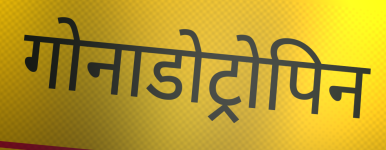
गोनाडोट्रोपिन